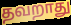
தவறாது